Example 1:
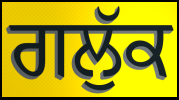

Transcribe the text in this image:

ਗਲੁੱਕ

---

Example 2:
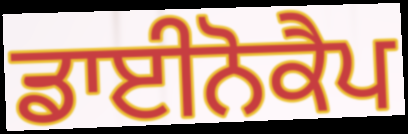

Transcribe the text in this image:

ਡਾਈਨੋਕੈਪ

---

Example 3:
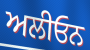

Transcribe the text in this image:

ਅਲੀਓਨ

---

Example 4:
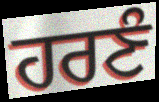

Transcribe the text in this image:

ਹਰਣੰ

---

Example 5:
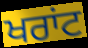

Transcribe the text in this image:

ਖਰਾਂਟ